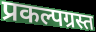
प्रकल्पग्रस्त